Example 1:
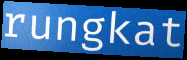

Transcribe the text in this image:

rungkat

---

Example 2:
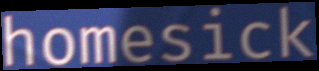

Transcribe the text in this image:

homesick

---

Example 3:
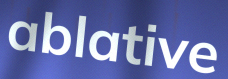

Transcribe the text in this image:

ablative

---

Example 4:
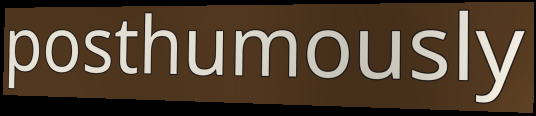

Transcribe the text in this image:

posthumously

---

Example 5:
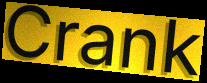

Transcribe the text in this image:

Crank